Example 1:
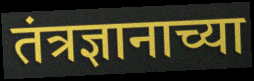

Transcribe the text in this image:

तंत्रज्ञानाच्या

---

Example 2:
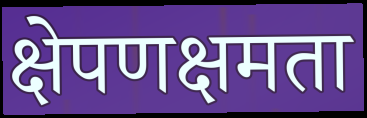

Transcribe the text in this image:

क्षेपणक्षमता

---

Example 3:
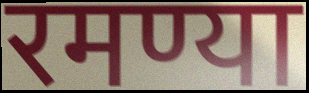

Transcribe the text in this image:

रमण्या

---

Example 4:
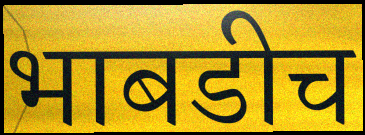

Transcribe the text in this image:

भाबडीच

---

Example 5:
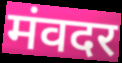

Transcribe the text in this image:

मंवदर